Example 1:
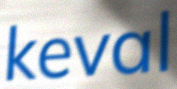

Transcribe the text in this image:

keval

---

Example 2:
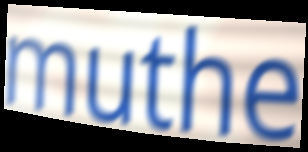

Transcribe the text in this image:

muthe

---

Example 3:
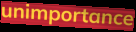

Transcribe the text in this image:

unimportance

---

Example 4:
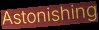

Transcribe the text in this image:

Astonishing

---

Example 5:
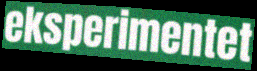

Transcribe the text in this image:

eksperimentet